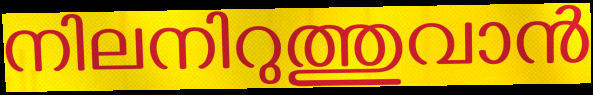
നിലനിറുത്തുവാൻ